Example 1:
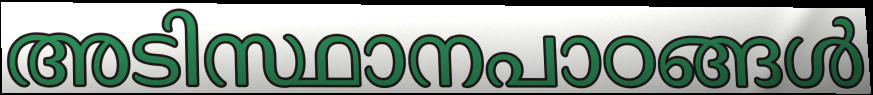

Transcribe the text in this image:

അടിസ്ഥാനപാഠങ്ങൾ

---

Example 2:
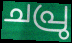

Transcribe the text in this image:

ചപ്രു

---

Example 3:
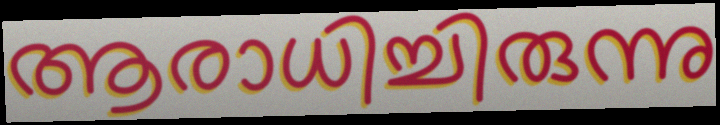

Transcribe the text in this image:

ആരാധിച്ചിരുന്നു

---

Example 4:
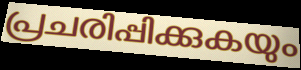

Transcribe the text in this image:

പ്രചരിപ്പിക്കുകയും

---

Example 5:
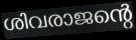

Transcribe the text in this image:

ശിവരാജന്റെ